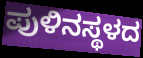
ಪುಳಿನಸ್ಥಳದ